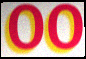
OO